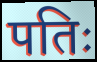
पतिः